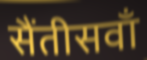
सैंतीसवाँ